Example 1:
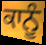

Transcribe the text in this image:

ਕਾਨੂੰ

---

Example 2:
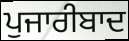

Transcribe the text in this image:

ਪੁਜਾਰੀਬਾਦ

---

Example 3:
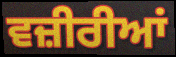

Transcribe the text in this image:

ਵਜ਼ੀਰੀਆਂ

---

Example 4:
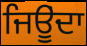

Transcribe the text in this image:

ਜਿਊੂਂਦਾ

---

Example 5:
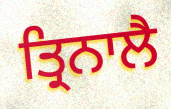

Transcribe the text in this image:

ਤ੍ਰਿਨਾਲੈ